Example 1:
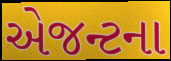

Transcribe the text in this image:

એજન્ટના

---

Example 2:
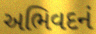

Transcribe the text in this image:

અભિવદનં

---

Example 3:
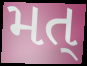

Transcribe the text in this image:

મત્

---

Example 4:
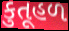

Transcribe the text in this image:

કુતૂહળ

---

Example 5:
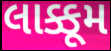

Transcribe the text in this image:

લાક્કૂમ